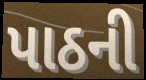
પાઠની